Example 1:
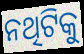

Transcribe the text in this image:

ନଥିଟିକୁ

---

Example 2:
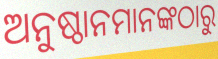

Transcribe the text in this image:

ଅନୁଷ୍ଠାନମାନଙ୍କଠାରୁ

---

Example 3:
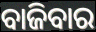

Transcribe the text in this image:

ବାଜିବାର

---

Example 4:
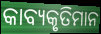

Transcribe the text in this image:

କାବ୍ୟକୃତିମାନ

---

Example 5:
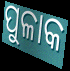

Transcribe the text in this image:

ପୁଳାକ